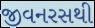
જીવનરસથી